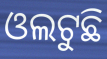
ଓଲଟୁଛି